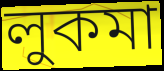
লুকমা